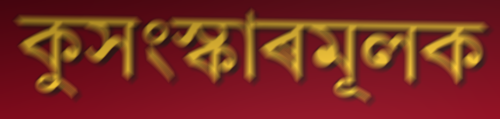
কুসংস্কাৰমূলক